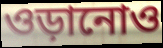
ওড়ানোও